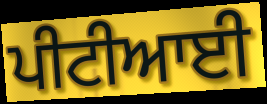
ਪੀਟੀਆਈ